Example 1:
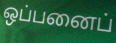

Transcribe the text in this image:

ஒப்பனைப்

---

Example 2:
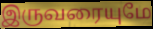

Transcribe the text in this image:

இருவரையுமே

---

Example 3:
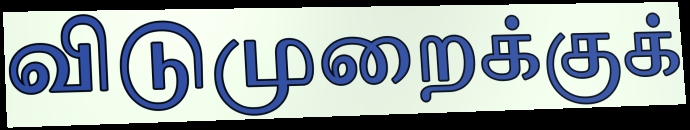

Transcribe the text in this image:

விடுமுறைக்குக்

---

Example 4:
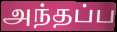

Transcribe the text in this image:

அந்தப்ப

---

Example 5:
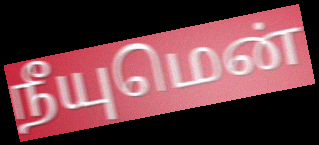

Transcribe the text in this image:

நீயுமென்